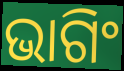
ଭାଗିଂ